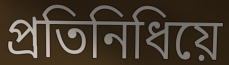
প্ৰতিনিধিয়ে